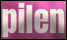
pilen